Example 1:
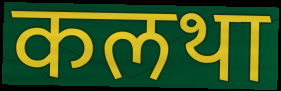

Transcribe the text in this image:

कलथा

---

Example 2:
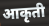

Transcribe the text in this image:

आकृती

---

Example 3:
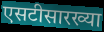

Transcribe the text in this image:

एसटीसारख्या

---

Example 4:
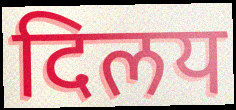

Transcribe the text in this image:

दिलय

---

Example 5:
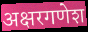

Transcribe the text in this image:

अक्षरगणेश